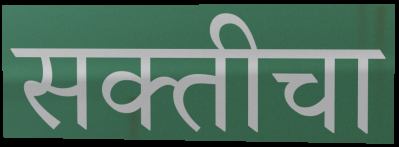
सक्तीचा